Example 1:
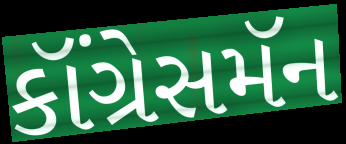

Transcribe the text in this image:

કૉંગ્રેસમૅન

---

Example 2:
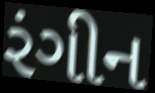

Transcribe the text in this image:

રંગીન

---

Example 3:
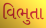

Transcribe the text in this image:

વિભુતા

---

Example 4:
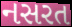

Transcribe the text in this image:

નસરત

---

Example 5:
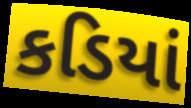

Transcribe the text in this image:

કડિયાં